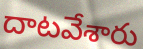
దాటవేశారు